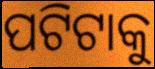
ପଟିଟାକୁ